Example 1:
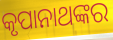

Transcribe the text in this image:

କୃପାନାଥଙ୍କର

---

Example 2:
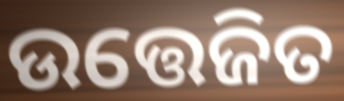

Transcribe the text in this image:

ଉତ୍ତେଜିତ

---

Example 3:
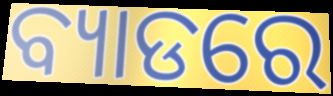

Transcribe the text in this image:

ବ୍ୟାଡରେ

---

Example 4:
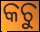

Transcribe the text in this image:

କଚୁ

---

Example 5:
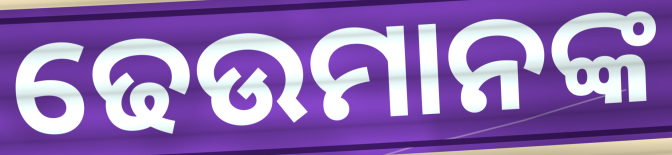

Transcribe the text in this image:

ଢେଉମାନଙ୍କ